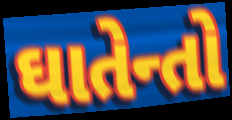
ઘાતેન્તો